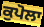
ਕੁਪੋਲਾ